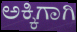
ಅಕ್ಕಿಗಾಗಿ